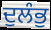
ਦੁਲੰਭੁ